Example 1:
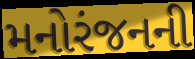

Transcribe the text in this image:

મનોરંજનની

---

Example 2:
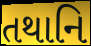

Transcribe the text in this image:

તથાનિ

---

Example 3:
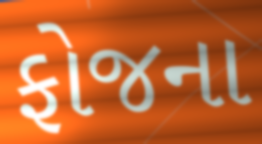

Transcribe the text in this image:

ફોજના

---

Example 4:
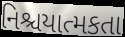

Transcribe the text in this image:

નિશ્ચયાત્મકતા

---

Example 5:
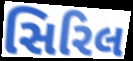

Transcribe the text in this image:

સિરિલ